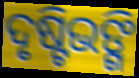
ଦୃଷ୍ଟିଭଙ୍ଗି